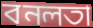
বনলতা